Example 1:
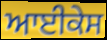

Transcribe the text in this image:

ਆਈਕੇਸ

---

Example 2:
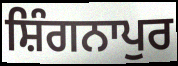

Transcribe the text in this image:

ਸ਼ਿੰਗਨਾਪੁਰ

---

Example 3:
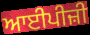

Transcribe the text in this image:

ਆਈਪੀਜ਼ੀ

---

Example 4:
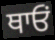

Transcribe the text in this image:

ਥਾਓਂ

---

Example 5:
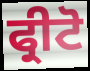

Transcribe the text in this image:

ਫ੍ਰੀਟੋ